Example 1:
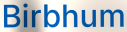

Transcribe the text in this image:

Birbhum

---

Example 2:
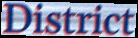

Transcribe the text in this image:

District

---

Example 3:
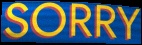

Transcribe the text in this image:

SORRY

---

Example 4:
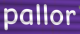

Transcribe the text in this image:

pallor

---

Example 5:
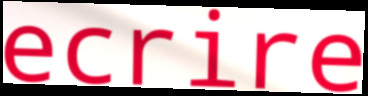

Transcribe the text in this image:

ecrire